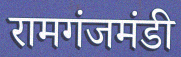
रामगंजमंडी